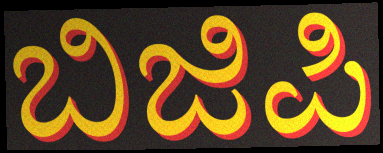
ಬಿಜಿಪಿ